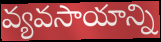
వ్యవసాయాన్ని